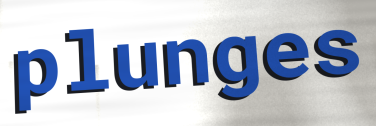
plunges